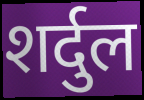
शर्दुल